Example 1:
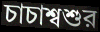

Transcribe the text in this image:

চাচাশ্বশুর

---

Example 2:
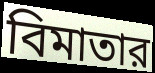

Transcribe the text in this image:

বিমাতার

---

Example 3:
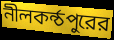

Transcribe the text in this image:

নীলকন্ঠপুরের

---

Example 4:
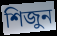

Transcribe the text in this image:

শিজুন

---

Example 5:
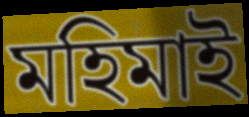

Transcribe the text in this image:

মহিমাই